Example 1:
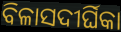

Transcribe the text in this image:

ବିଳାସଦୀର୍ଘିକା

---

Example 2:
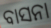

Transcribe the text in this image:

ବାସନା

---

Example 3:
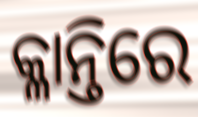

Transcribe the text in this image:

କ୍ଳାନ୍ତିରେ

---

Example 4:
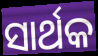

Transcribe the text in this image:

ସାର୍ଥକ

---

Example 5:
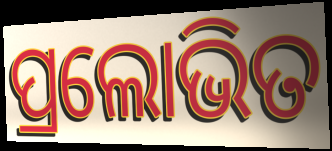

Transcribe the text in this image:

ପ୍ରଲୋଭିତ